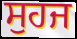
ਸੁਹਜ